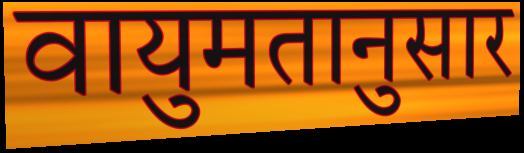
वायुमतानुसार